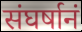
संघर्षानं